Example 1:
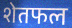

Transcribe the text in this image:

शेतफल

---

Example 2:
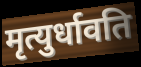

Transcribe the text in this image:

मृत्युर्धावति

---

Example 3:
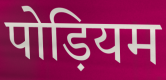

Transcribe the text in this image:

पोड़ियम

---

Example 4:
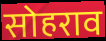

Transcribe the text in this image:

सोहराव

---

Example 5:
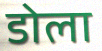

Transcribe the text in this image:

डोला